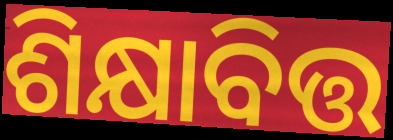
ଶିକ୍ଷାବିତ୍ତ